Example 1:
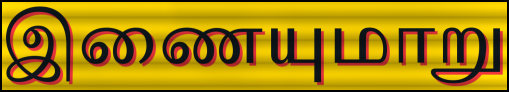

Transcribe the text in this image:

இணையுமாறு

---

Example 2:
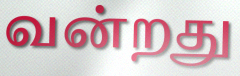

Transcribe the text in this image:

வன்றது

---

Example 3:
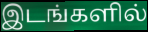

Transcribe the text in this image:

இடங்களில்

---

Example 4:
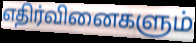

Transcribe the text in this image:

எதிர்வினைகளும்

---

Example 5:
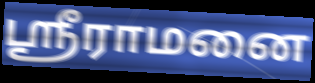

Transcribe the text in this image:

ஸ்ரீராமனை